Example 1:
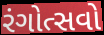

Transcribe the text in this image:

રંગોત્સવો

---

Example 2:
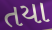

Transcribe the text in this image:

તયા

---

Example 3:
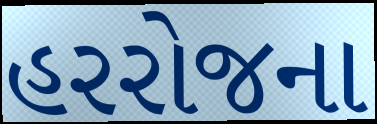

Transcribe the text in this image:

હરરોજના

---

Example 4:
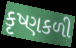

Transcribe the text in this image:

કૃષ્ણકળી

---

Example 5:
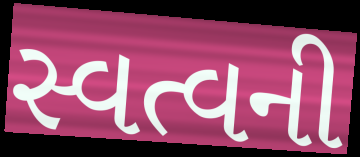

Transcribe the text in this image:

સ્વત્વની